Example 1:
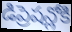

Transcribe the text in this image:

డిప్రెషన్లోకి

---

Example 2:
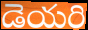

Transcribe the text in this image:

డెయరి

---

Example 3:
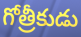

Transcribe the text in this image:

గోత్రీకుడు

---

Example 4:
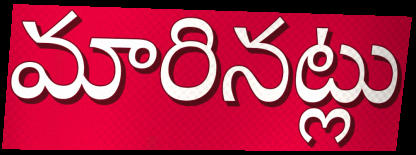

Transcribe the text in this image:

మారినట్లు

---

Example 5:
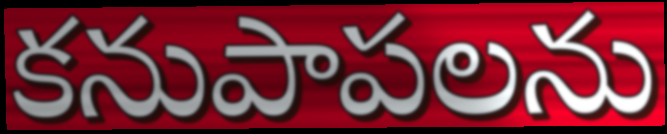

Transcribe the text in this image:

కనుపాపలను